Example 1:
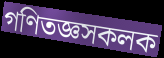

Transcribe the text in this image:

গণিতজ্ঞসকলক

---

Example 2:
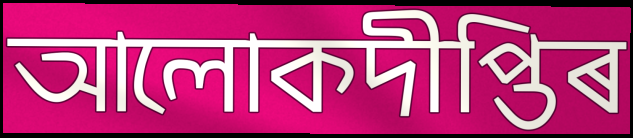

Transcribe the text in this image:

আলোকদীপ্তিৰ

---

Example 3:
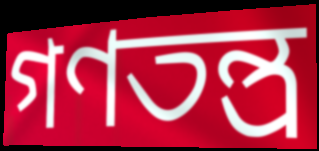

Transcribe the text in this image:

গণতন্ত্ৰ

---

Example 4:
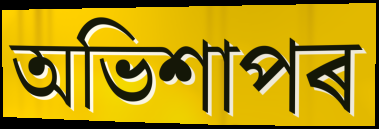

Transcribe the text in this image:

অভিশাপৰ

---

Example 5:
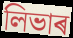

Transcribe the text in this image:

লিভাৰ